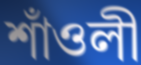
শাঁওলী